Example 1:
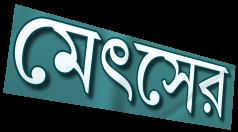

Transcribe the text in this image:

মেৎসের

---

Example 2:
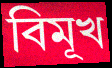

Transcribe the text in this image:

বিমূখ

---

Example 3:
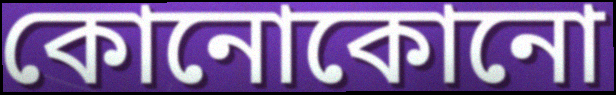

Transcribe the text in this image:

কোনোকোনো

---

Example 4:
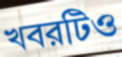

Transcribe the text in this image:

খবরটিও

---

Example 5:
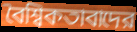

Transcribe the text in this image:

বৈশ্বিকতাবাদের